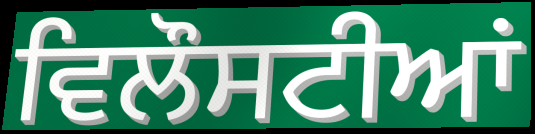
ਵਿਲੌਸਟੀਆਂ